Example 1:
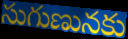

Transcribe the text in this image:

సుగుణునకు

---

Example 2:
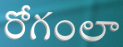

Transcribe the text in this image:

రోగంలా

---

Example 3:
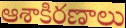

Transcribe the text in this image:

ఆశాకిరణాలు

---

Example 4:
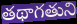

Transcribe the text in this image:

తథాగతుని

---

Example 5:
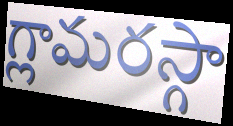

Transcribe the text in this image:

గ్లామరస్గా